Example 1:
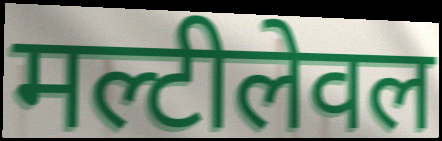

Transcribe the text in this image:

मल्टीलेवल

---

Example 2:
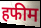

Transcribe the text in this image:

हफीम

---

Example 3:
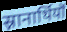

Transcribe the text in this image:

स्नानार्थियों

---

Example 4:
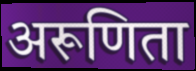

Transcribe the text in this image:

अरूणिता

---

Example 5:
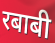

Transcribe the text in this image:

रबाबी